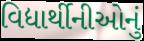
વિદ્યાર્થીનીઓનું